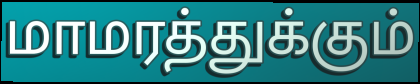
மாமரத்துக்கும்